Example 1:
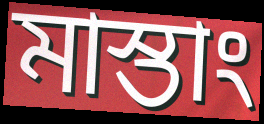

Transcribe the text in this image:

মাস্তাং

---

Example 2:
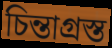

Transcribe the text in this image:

চিন্তাগ্রস্ত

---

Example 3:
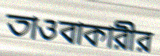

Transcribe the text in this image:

তাওবাকারীর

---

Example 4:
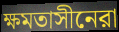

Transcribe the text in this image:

ক্ষমতাসীনেরা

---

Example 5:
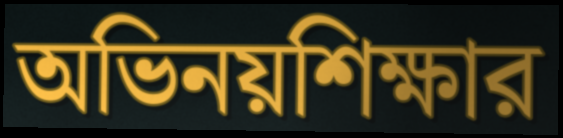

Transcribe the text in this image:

অভিনয়শিক্ষার